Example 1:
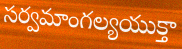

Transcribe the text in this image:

సర్వమాంగల్యయుక్తా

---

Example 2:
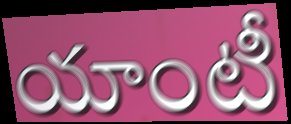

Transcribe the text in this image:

యాంటీ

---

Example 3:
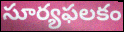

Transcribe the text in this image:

సూర్యఫలకం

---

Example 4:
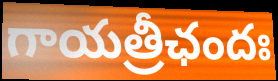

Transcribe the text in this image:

గాయత్రీఛందః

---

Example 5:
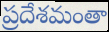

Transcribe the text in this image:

ప్రదేశమంతా